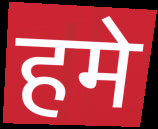
हमे